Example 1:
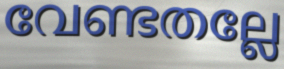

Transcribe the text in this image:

വേണ്ടതല്ലേ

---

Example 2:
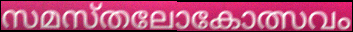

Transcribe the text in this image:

സമസ്തലോകോത്സവം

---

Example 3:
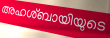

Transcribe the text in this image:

അഹശ്ബായിയുടെ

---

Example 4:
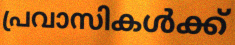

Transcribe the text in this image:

പ്രവാസികൾക്ക്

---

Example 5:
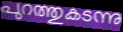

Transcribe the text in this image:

പുറത്തുകടന്നു